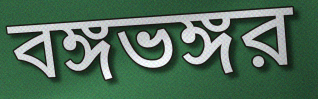
বঙ্গভঙ্গর